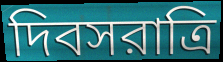
দিবসরাত্রি